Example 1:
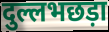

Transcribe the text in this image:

दुल्लभछड़ा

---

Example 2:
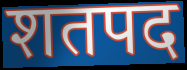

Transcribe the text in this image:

शतपद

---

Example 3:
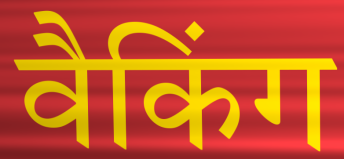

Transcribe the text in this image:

वैकिंग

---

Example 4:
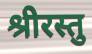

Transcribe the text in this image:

श्रीरस्तु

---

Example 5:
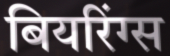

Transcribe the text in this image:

बियरिंग्स